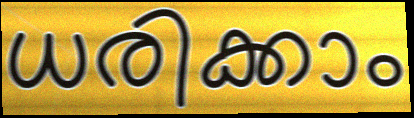
ധരിക്കാം